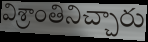
విశ్రాంతినిచ్చారు